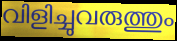
വിളിച്ചുവരുത്തും